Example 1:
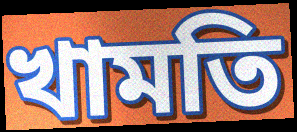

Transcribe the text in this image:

খামতি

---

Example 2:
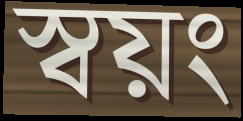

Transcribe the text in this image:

স্বয়ং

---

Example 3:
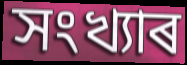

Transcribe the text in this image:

সংখ্যাৰ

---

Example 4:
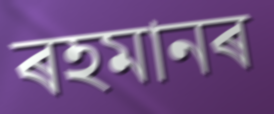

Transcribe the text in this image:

ৰহমানৰ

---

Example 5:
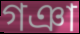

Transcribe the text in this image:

গঞা